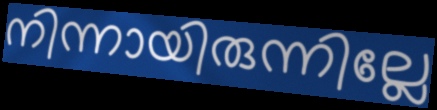
നിന്നായിരുന്നില്ലേ